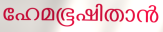
ഹേമഭൂഷിതാൻ